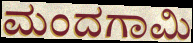
ಮಂದಗಾಮಿ